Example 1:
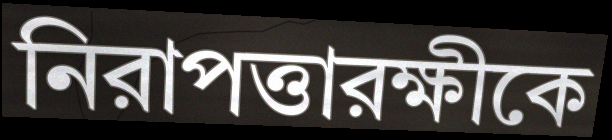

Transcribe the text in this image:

নিরাপত্তারক্ষীকে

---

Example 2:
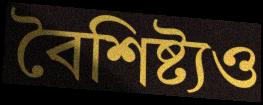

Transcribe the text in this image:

বৈশিষ্ট্যও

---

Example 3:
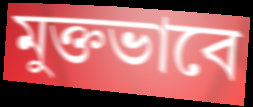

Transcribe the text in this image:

মুক্তভাবে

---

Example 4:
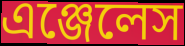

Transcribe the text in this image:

এঞ্জেলেস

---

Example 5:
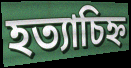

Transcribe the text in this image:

হত্যাচিহ্ন